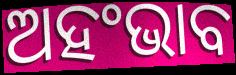
ଅହଂଭାବ